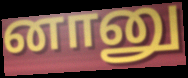
னானு